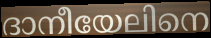
ദാനീയേലിനെ